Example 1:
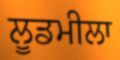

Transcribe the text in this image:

ਲੂਡਮੀਲਾ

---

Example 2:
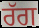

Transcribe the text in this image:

ਰੱਗ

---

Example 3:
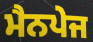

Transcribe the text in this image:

ਮੈਨਪੇਜ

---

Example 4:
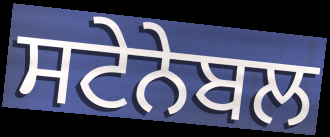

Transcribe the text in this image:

ਸਟੇਨੇਬਲ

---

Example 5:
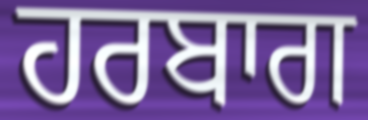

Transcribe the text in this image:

ਹਰਬਾਗ